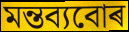
মন্তব্যবোৰ